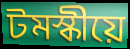
টমস্কীয়ে